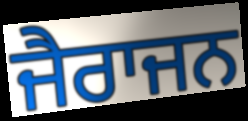
ਜੈਰਾਜਨ